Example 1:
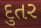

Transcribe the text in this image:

દુતર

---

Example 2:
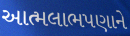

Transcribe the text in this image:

આત્મલાભપણાને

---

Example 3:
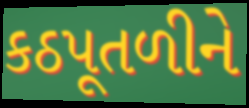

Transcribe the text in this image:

કઠપૂતળીને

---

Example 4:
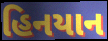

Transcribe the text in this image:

હિનયાન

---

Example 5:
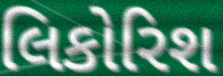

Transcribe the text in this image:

લિકોરિશ